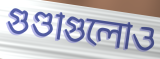
গুণ্ডাগুলোও